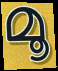
മൂ